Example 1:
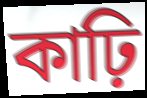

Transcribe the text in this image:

কাঢ়ি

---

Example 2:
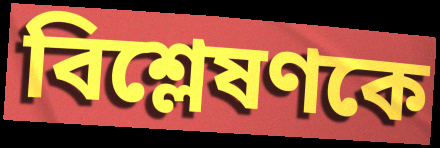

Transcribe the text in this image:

বিশ্লেষণকে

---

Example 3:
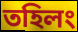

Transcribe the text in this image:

তহিলং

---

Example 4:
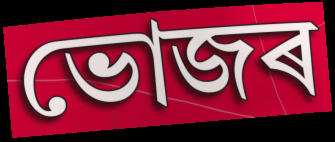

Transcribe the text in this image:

ভোজৰ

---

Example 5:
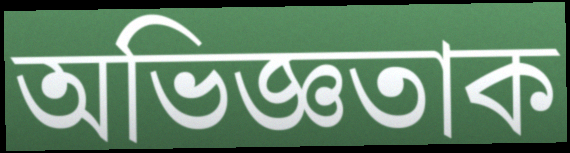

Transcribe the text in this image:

অভিজ্ঞতাক